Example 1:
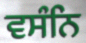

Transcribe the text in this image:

ਵਸੰਨਿ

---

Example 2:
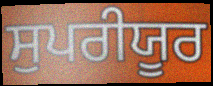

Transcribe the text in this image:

ਸੁਪਰੀਯੂਰ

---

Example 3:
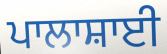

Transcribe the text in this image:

ਪਾਲਾਸ਼ਾਈ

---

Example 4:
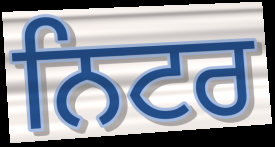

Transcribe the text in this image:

ਨਿਟਰ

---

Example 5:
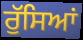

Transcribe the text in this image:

ਰੁੱਸਿਆਂ